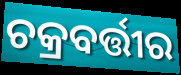
ଚକ୍ରବର୍ତ୍ତୀର